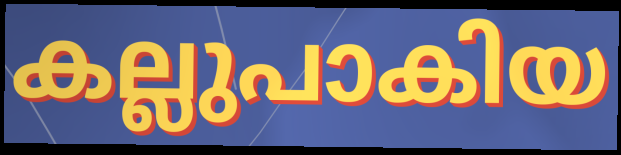
കല്ലുപാകിയ